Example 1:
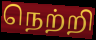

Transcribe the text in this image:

நெற்றி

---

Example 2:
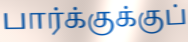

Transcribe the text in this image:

பார்க்குக்குப்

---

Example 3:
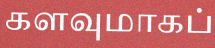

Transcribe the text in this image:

களவுமாகப்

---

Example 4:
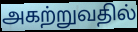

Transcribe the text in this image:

அகற்றுவதில்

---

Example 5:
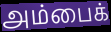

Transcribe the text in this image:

அம்பைக்